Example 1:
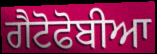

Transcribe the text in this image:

ਗੈਟੋਫੋਬੀਆ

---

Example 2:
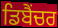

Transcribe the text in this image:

ਡਿਬੈਂਚਰ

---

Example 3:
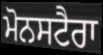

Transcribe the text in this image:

ਮੋਨਸਟੈਰਾ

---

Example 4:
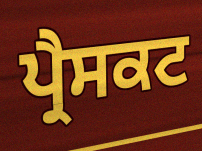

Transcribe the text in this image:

ਪ੍ਰੈਸਕਟ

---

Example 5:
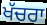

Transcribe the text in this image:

ਖੱਚਰਾ